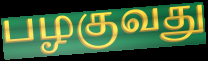
பழகுவது